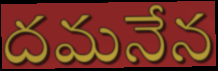
దమనేన